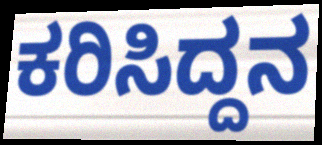
ಕರಿಸಿದ್ದನ